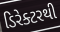
ડિરેક્ટરથી